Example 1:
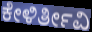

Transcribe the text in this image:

ಕೇಳಿರ್ತೀವಿ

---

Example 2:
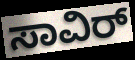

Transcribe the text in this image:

ಸಾವಿರ್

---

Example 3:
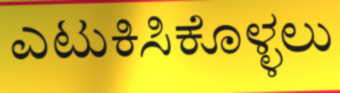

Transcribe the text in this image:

ಎಟುಕಿಸಿಕೊಳ್ಳಲು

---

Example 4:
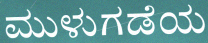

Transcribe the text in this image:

ಮುಳುಗಡೆಯ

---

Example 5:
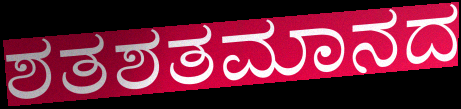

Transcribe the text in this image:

ಶತಶತಮಾನದ